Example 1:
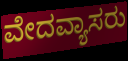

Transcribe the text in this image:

ವೇದವ್ಯಾಸರು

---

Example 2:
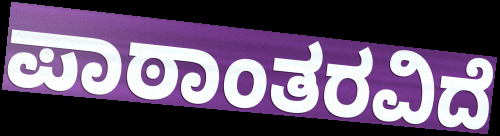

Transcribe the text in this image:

ಪಾಠಾಂತರವಿದೆ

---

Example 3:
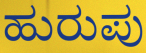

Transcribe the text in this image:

ಹುರುಪು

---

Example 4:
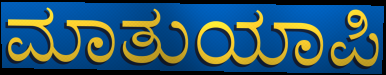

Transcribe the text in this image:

ಮಾತುಯಾಪಿ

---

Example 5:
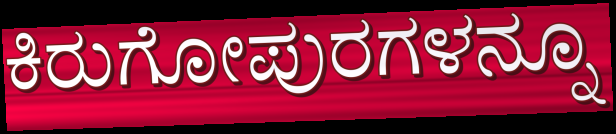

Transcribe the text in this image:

ಕಿರುಗೋಪುರಗಳನ್ನೂ